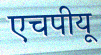
एचपीयू